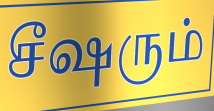
சீஷரும்